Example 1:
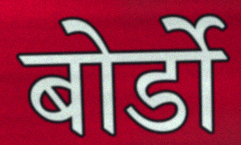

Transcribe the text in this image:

बोर्डो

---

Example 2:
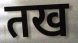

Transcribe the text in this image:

तख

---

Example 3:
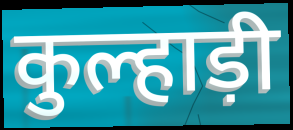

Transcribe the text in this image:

कुल्हाड़ी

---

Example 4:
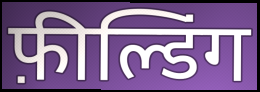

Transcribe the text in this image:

फ़ील्डिंग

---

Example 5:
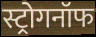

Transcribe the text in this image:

स्ट्रोगनॉफ